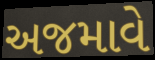
અજમાવે